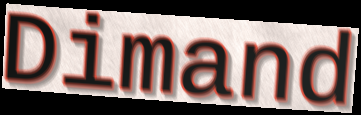
Dimand